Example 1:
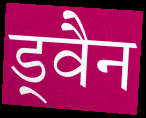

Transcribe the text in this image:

ड्वैन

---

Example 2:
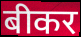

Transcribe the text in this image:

बीकर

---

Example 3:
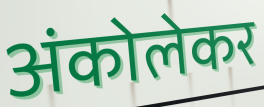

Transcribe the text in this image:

अंकोलेकर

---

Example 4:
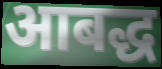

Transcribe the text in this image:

आबद्ध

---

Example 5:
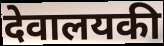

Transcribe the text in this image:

देवालयकी